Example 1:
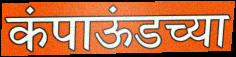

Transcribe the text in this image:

कंपाऊंडच्या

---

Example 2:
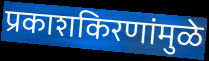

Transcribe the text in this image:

प्रकाशकिरणांमुळे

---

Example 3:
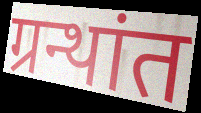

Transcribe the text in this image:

ग्रन्थांत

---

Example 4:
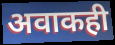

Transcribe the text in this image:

अवाकही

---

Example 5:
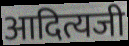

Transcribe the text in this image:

आदित्यजी